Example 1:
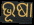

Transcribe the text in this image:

ଭୂଷା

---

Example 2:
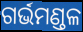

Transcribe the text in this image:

ଗର୍ଭମଣ୍ଡଳ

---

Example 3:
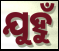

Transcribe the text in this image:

ଯୁହୁଁ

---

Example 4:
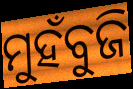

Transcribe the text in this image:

ମୁହଁବୁଜି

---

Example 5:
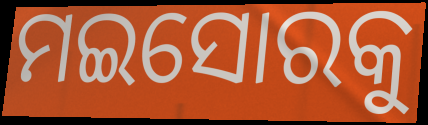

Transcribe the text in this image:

ମଇସୋରକୁ